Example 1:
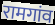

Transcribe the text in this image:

रामगांव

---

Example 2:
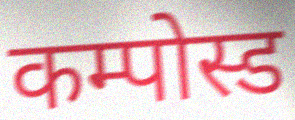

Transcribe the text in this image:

कम्पोस्ड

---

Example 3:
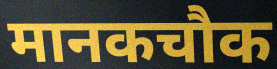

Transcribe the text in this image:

मानकचौक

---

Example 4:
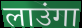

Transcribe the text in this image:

लाउंगा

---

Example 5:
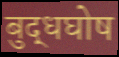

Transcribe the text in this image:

बुद्धघोष